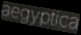
aegyptica